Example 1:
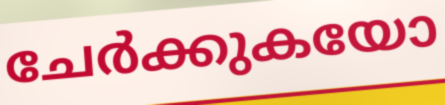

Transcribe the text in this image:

ചേർക്കുകയോ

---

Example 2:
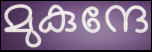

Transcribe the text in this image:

മുകുന്ദേ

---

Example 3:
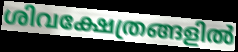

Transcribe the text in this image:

ശിവക്ഷേത്രങ്ങളിൽ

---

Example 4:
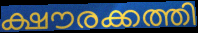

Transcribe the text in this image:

ക്ഷൗരക്കത്തി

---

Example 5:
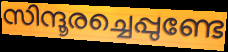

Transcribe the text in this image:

സിന്ദൂരച്ചെപ്പുണ്ടേ